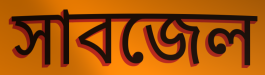
সাবজেল